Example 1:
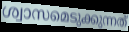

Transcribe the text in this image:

ശ്വാസമെടുക്കുന്നത്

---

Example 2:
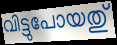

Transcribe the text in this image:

വിട്ടുപോയതു്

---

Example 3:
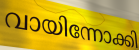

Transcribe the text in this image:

വായിന്നോക്കി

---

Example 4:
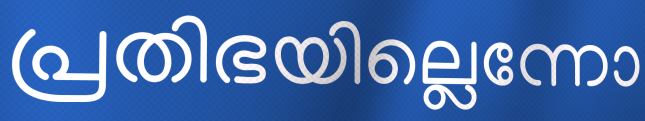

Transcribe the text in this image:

പ്രതിഭയില്ലെന്നോ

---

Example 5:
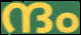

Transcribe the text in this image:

ന്ദം